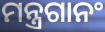
ମନ୍ତ୍ରଗାନଂ